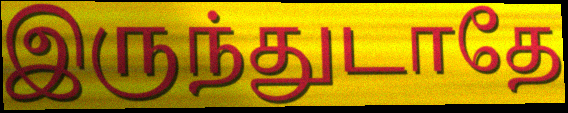
இருந்துடாதே